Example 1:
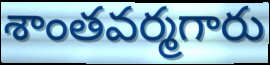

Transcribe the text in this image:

శాంతవర్మగారు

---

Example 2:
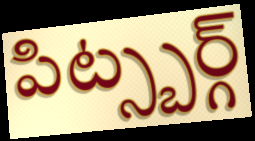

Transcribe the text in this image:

పిట్స్బర్గ్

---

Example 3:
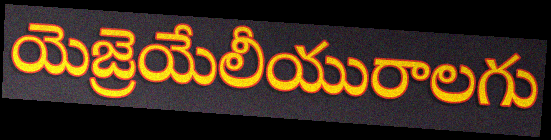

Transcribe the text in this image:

యెజ్రెయేలీయురాలగు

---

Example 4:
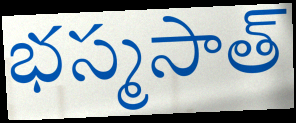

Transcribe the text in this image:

భస్మసాత్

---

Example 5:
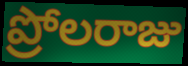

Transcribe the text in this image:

ప్రోలరాజు